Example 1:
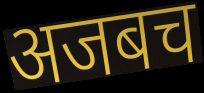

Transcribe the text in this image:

अजबच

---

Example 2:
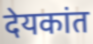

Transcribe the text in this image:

देयकांत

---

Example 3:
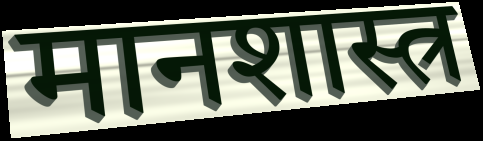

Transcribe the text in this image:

मानशास्त्र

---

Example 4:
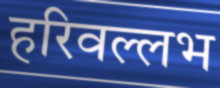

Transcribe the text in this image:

हरिवल्लभ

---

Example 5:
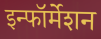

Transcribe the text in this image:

इन्फॉर्मेशन